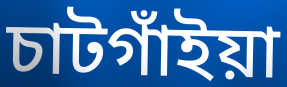
চাটগাঁইয়া